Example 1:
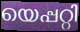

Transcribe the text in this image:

യെപ്പറ്റി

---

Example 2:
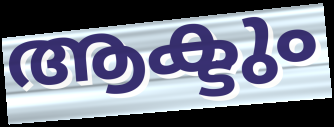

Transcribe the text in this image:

ആക്ടും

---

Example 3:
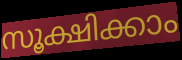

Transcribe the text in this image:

സൂക്ഷിക്കാം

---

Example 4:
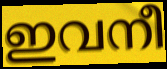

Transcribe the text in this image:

ഇവനീ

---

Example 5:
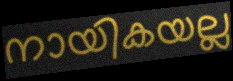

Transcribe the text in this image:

നായികയല്ല